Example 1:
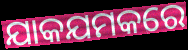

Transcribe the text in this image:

ଯାକଯମକରେ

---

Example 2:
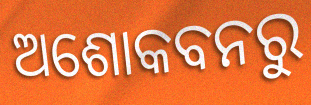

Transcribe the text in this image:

ଅଶୋକବନରୁ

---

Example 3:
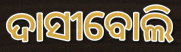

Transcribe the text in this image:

ଦାସୀବୋଲି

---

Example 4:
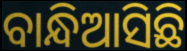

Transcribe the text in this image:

ବାନ୍ଧିଆସିଛି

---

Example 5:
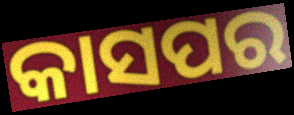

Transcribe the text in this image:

କାସପର